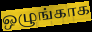
ஒழுங்காக